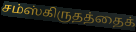
சம்ஸ்கிருதத்தைக்